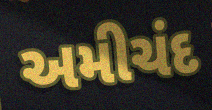
અમીચંદ